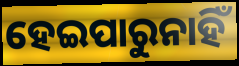
ହେଇପାରୁନାହିଁ